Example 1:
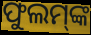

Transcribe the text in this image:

ଫୁଲମ୍‌ଙ୍କ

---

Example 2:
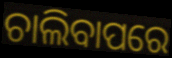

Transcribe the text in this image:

ଚାଲିବାପରେ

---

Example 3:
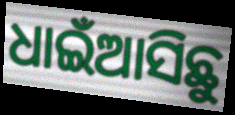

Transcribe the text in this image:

ଧାଇଁଆସିଛୁ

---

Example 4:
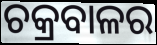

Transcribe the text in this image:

ଚକ୍ରବାଳର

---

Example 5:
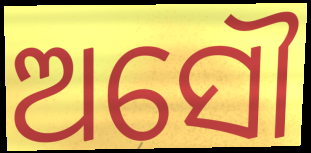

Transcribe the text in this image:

ଅସୌ